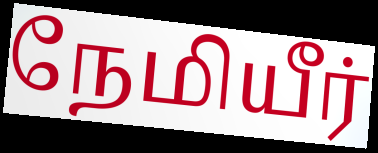
நேமியீர்